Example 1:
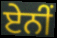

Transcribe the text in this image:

ਏਨੀਂ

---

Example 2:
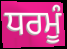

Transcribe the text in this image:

ਧਰਮੂੰ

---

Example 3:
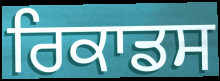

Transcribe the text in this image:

ਰਿਕਾਡਸ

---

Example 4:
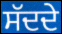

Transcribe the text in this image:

ਸੱਦਦੇ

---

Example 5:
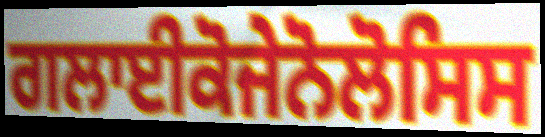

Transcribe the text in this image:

ਗਲਾਈਕੋਜੇਨੋਲੋਸਿਸ